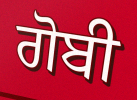
ਗੋਬੀ